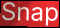
Snap